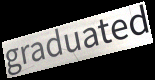
graduated